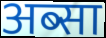
अब्सा